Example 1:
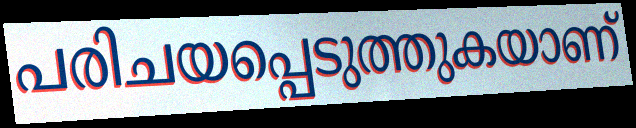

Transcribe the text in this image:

പരിചയപ്പെടുത്തുകയാണ്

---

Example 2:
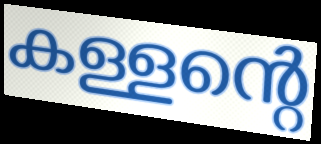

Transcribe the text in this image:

കള്ളന്റെ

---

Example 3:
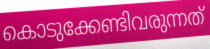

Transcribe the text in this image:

കൊടുക്കേണ്ടിവരുന്നത്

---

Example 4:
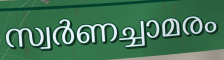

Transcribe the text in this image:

സ്വർണച്ചാമരം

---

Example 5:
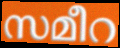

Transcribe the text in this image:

സമീറ